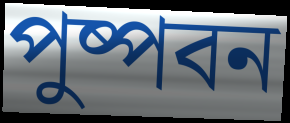
পুষ্পবন